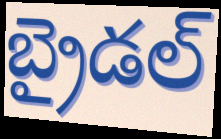
బ్రైడల్